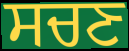
ਸਚਣ